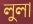
লুলা